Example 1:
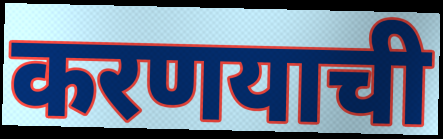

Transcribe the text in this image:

करणयाची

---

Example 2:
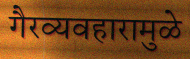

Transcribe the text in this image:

गैरव्यवहारामुळे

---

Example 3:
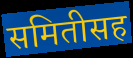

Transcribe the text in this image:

समितीसह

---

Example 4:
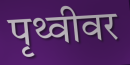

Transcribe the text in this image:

पृथ्वीवर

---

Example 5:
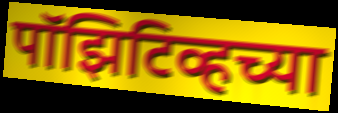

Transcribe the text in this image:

पॉझिटिव्हच्या